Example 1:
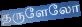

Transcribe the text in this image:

தருளேலோ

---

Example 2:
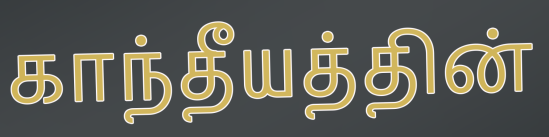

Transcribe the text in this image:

காந்தீயத்தின்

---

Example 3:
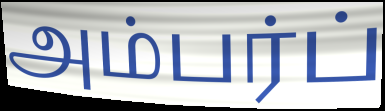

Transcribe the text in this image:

அம்பர்ப்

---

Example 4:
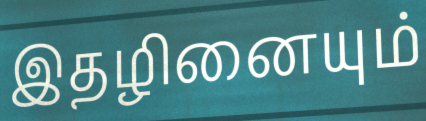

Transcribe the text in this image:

இதழினையும்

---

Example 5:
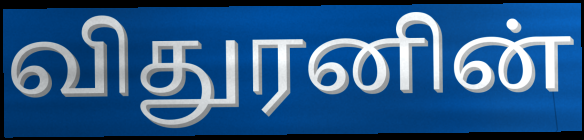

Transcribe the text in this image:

விதுரனின்